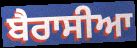
ਬੈਰਾਸੀਆ